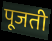
पूजती